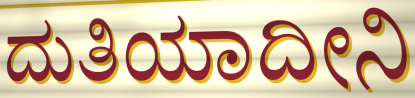
ದುತಿಯಾದೀನಿ